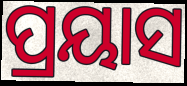
ପ୍ରୟାସ